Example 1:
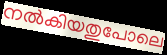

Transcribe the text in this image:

നൽകിയതുപോലെ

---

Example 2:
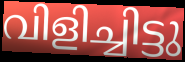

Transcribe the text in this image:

വിളിച്ചിട്ടു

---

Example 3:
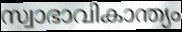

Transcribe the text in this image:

സ്വാഭാവികാന്ത്യം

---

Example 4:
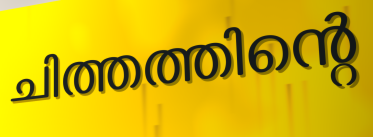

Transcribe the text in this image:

ചിത്തത്തിന്റെ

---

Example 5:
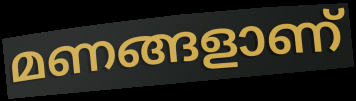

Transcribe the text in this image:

മണങ്ങളാണ്